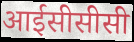
आईसीसीसी